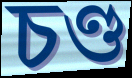
চণ্ড